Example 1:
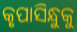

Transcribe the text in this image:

କୃପାସିନ୍ଧୁକୁ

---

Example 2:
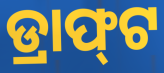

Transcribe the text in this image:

ଡ୍ରାଫ୍‍ଟ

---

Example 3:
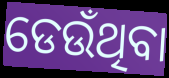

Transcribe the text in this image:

ଡେଉଁଥିବା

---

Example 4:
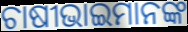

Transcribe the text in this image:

ଚାଷୀଭାଇମାନଙ୍କ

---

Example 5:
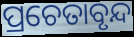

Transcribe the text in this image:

ପ୍ରଚେତାବୃନ୍ଦ